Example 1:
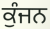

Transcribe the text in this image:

ਕੁੰਜਨ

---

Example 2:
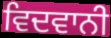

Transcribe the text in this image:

ਵਿਦਵਾਨੀ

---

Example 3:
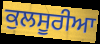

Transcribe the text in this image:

ਕੁਲਸੂਰੀਆ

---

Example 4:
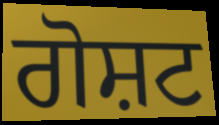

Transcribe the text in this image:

ਗੋਸ਼ਟ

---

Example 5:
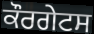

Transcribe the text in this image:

ਕੌਰਗੇਟਸ